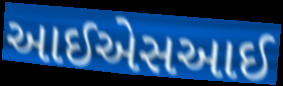
આઈએસઆઈ